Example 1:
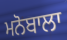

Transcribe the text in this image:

ਮਨੋਬਾਲਾ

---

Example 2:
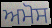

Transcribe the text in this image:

ਅਮੋਸ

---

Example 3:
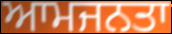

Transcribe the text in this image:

ਆਮਜਨਤਾ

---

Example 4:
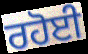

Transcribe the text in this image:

ਰਹੋਈ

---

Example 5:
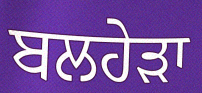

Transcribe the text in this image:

ਬਲਹੇੜਾ